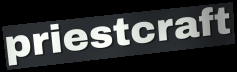
priestcraft